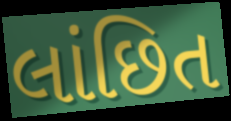
લાંછિત